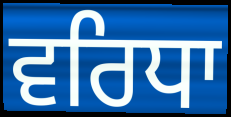
ਵਰਿਧਾ